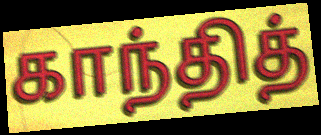
காந்தித்